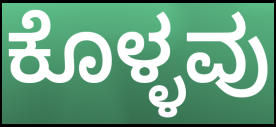
ಕೊಳ್ಳವು